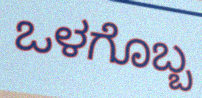
ಒಳಗೊಬ್ಬ